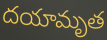
దయామృత